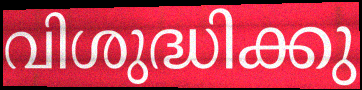
വിശുദ്ധിക്കു